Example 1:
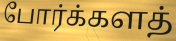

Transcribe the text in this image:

போர்க்களத்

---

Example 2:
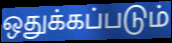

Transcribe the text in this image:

ஒதுக்கப்படும்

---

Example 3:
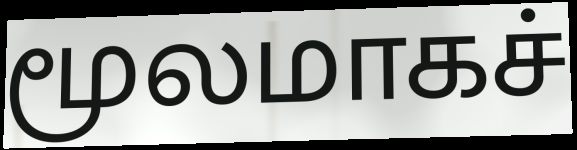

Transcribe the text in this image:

மூலமாகச்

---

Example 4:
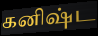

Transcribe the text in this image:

கனிஷ்ட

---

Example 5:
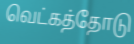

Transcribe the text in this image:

வெட்கத்தோடு